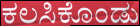
ಕಲಸಿಕೊಂಡು